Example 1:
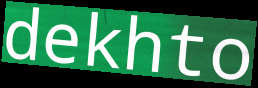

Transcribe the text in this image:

dekhto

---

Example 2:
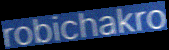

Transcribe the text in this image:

robichakro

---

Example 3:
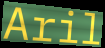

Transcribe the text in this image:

Aril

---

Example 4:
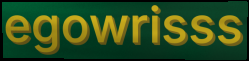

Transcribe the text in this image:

egowrisss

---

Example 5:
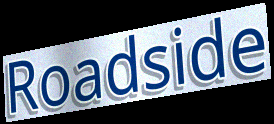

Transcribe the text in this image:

Roadside